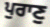
ਪੁਰਾਣੁ